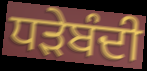
ਧੜੇਬੰਦੀ